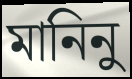
মানিনু